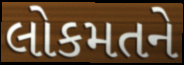
લોકમતને